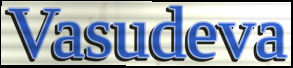
Vasudeva